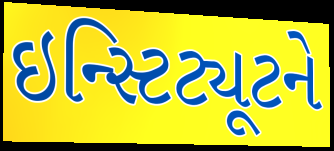
ઇન્સ્ટિટ્યૂટને